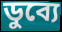
ডুব্যে